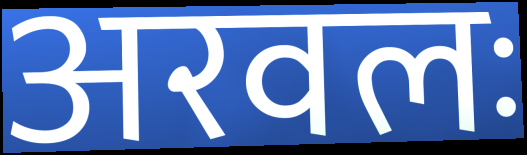
अरवलः